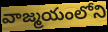
వాజ్మయంలోని